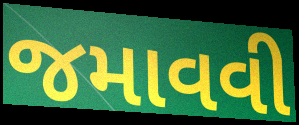
જમાવવી